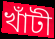
খাঁটী